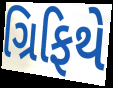
ગ્રિફિથે